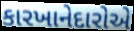
કારખાનેદારોએ